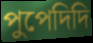
পুপেদিদি